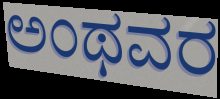
ಅಂಥವರ